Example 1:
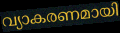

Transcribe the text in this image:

വ്യാകരണമായി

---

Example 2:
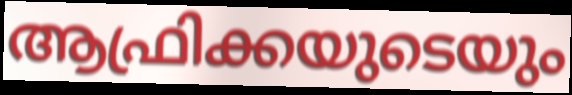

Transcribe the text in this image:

ആഫ്രിക്കയുടെയും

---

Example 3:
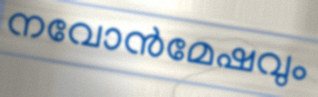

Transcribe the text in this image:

നവോൻമേഷവും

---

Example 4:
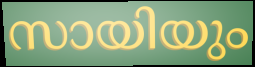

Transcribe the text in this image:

സായിയും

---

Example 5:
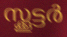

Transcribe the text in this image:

സ്ക്കൂട്ടർ